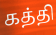
கத்தி